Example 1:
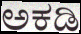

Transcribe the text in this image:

ಅಕಡಿ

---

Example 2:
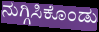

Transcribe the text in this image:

ನುಗ್ಗಿಸಿಕೊಂಡು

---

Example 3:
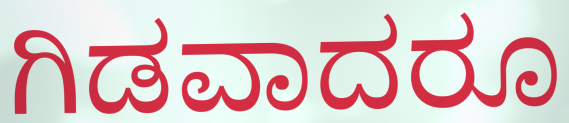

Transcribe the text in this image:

ಗಿಡವಾದರೂ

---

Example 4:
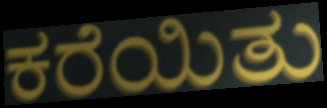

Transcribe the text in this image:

ಕರೆಯಿತು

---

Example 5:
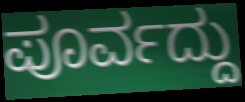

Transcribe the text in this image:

ಪೂರ್ವದ್ದು